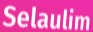
Selaulim